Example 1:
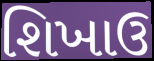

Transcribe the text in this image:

શિખાઉ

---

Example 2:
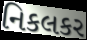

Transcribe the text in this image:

નિકલકર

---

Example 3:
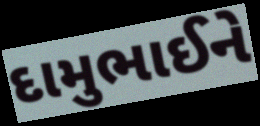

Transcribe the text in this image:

દામુભાઈને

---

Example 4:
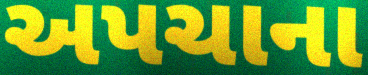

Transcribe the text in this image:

અપચાના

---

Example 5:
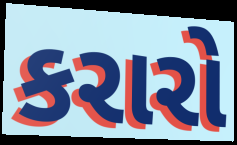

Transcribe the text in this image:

કરારો